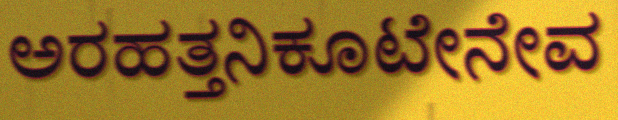
ಅರಹತ್ತನಿಕೂಟೇನೇವ